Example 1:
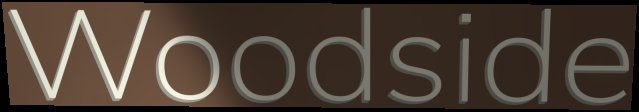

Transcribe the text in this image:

Woodside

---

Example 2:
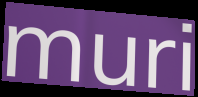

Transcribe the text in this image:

muri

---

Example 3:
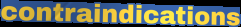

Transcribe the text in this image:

contraindications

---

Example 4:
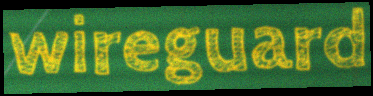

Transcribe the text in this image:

wireguard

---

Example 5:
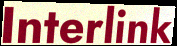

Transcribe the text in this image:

Interlink